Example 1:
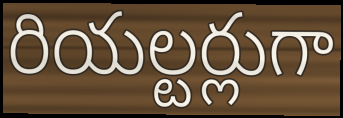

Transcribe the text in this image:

రియల్టర్లుగా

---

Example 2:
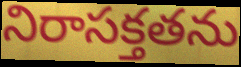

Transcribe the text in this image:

నిరాసక్తతను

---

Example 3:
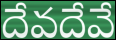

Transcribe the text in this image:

దేవదేవే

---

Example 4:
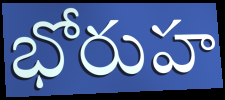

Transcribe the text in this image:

భోరుహ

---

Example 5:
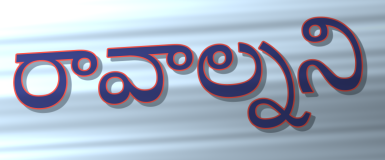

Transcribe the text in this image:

రావాల్నని